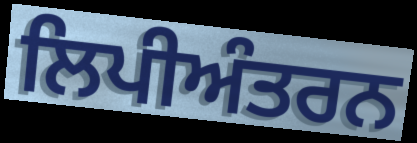
ਲਿਪੀਅੰਤਰਨ